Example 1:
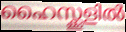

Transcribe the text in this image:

ഹൈസ്ക്കൂളിൽ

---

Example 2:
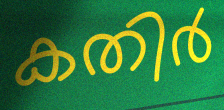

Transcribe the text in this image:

കതിർ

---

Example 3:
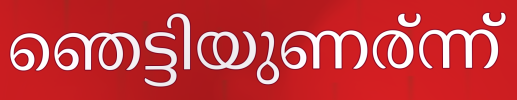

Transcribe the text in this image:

ഞെട്ടിയുണര്ന്ന്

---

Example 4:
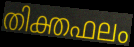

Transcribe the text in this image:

തിക്തഫലം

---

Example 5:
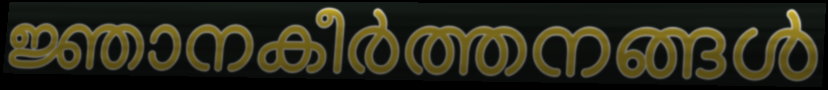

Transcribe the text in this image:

ജ്ഞാനകീർത്തനങ്ങൾ